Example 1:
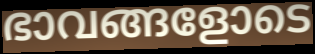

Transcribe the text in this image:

ഭാവങ്ങളോടെ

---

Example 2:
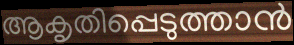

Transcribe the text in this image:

ആകൃതിപ്പെടുത്താൻ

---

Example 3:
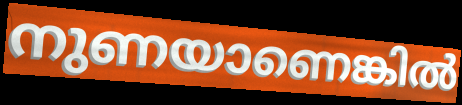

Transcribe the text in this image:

നുണയാണെങ്കിൽ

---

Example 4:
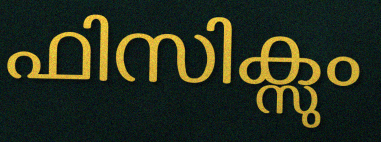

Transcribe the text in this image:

ഫിസിക്സും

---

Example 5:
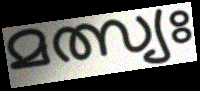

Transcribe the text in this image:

മത്സ്യഃ